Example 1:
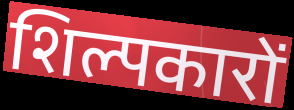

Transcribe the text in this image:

शिल्पकारों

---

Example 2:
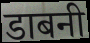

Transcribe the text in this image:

डाबनी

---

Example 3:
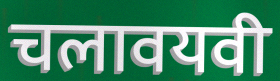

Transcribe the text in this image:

चलावयवी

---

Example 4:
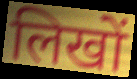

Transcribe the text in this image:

लिखों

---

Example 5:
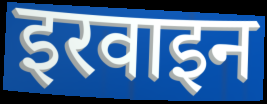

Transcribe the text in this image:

इरवाइन